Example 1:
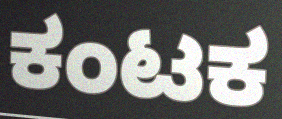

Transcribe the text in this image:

ಕಂಟಕ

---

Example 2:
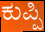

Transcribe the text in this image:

ಕುಪ್ಪಿ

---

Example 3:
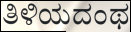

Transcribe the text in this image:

ತಿಳಿಯದಂಥ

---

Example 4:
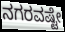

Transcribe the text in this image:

ನಗರವಷ್ಟೇ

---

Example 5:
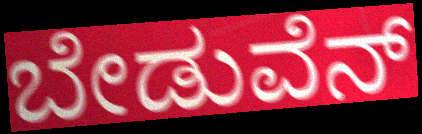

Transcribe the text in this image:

ಬೇಡುವೆನ್